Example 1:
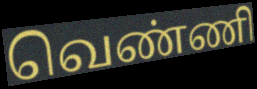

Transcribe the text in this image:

வெண்ணி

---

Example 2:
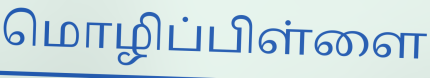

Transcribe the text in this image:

மொழிப்பிள்ளை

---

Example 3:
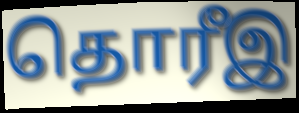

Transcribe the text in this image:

தொரீஇ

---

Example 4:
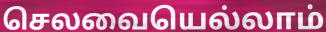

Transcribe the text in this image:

செலவையெல்லாம்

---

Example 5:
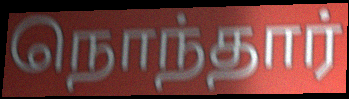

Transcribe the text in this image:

நொந்தார்